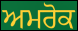
ਅਮਰੋਕ